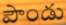
పౌండు